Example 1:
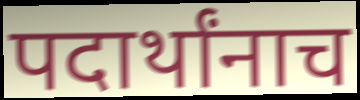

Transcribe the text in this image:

पदार्थांनाच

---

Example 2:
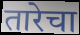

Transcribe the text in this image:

तारेचा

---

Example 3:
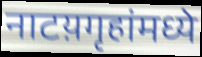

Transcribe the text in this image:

नाटय़गृहांमध्ये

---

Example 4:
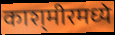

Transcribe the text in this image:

काश्मीरमध्ये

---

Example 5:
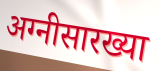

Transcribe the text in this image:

अग्नीसारख्या